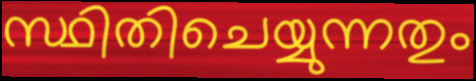
സ്ഥിതിചെയ്യുന്നതും